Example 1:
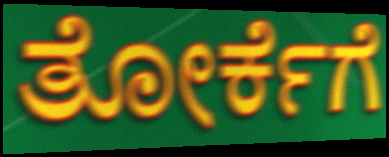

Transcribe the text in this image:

ತೋರ್ಕೆಗೆ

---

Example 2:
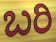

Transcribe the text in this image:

ಬರಿ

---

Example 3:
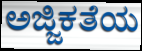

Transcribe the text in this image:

ಅಜ್ಜಿಕತೆಯ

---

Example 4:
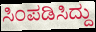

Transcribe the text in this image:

ಸಿಂಪಡಿಸಿದ್ದು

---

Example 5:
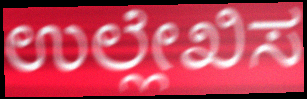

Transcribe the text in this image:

ಉಲ್ಲೇಖಿಸ